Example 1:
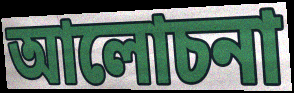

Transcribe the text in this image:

আলোচনা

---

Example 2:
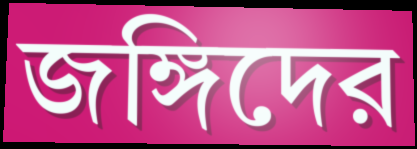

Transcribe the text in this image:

জঙ্গিদের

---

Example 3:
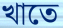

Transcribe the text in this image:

খাতে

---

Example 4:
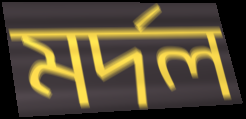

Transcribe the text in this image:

মর্দল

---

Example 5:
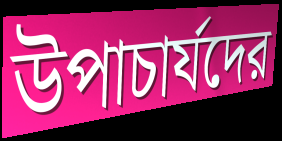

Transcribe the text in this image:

উপাচার্যদের